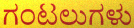
ಗಂಟಲುಗಳು